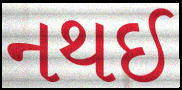
નથઈ